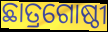
ଛାତ୍ରଗୋଷ୍ଠୀ